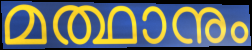
മത്ഥാനും